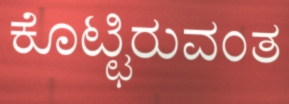
ಕೊಟ್ಟಿರುವಂತ